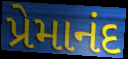
પ્રેમાનંદ